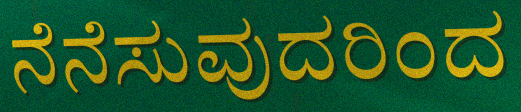
ನೆನೆಸುವುದರಿಂದ